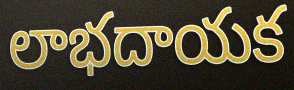
లాభదాయక